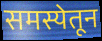
समस्येतून